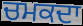
ਚਮਕਦਾ